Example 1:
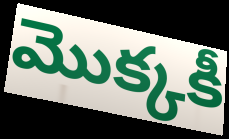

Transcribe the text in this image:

మొక్కకీ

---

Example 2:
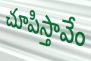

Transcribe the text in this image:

చూపిస్తావేం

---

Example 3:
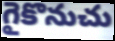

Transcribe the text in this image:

గైకొనుచు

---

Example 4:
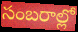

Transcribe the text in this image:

సంబరాల్లో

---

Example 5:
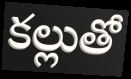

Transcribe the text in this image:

కల్లుతో